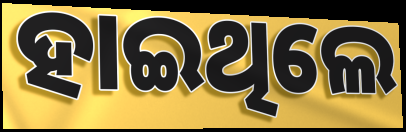
ହାଇଥିଲେ